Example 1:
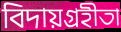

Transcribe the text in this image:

বিদায়গ্রহীতা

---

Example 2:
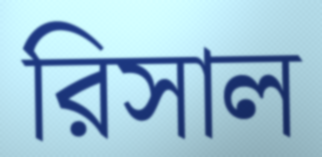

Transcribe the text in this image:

রিসাল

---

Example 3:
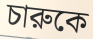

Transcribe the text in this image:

চারুকে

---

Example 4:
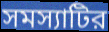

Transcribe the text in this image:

সমস্যাটির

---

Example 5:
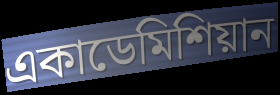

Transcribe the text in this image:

একাডেমিশিয়ান